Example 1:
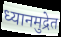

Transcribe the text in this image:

ध्यानमुद्रेत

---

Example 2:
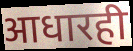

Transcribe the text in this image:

आधारही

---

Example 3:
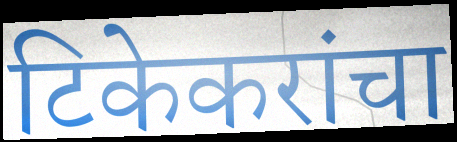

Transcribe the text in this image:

टिकेकरांचा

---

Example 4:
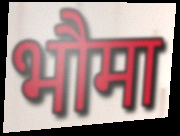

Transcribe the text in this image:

भौमा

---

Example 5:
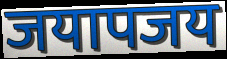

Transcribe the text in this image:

जयापजय